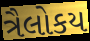
ત્રૈલોકય